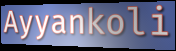
Ayyankoli